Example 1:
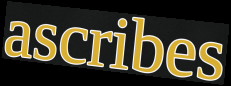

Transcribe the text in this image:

ascribes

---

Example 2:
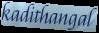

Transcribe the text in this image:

kadithangal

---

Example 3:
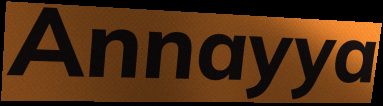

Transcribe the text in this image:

Annayya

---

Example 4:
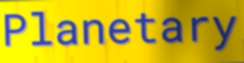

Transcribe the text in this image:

Planetary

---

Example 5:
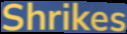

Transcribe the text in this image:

Shrikes